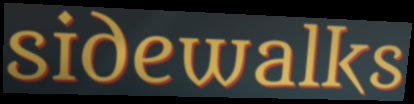
sidewalks